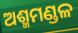
ଅଶ୍ମମଣ୍ଡଳ